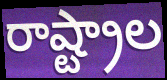
రాష్ట్రాల